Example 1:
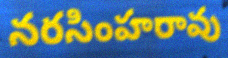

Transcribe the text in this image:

నరసింహరావు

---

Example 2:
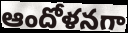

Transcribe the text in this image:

ఆందోళనగా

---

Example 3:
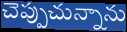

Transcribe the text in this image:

చెప్పుచున్నాను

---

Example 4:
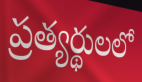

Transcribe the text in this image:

ప్రత్యర్థులలో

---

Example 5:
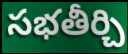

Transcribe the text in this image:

సభతీర్చి